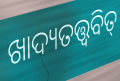
ଖାଦ୍ୟତତ୍ତ୍ୱବିତ୍